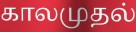
காலமுதல்